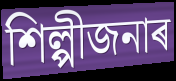
শিল্পীজনাৰ